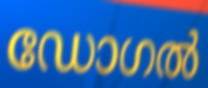
ഡോഗൽ